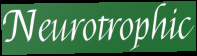
Neurotrophic